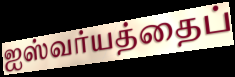
ஐஸ்வர்யத்தைப்